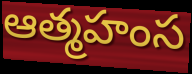
ఆత్మహంస